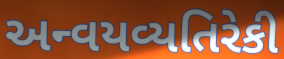
અન્વયવ્યતિરેકી